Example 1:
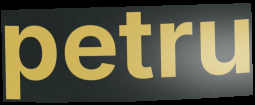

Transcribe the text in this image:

petru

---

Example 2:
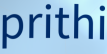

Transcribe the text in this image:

prithi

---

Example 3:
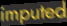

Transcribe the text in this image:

imputed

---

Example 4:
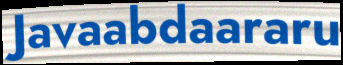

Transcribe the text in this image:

Javaabdaararu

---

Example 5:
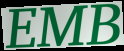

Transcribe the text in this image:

EMB